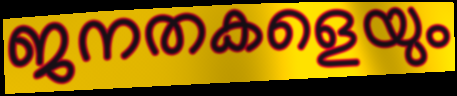
ജനതകളെയും